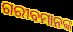
ଗରୀବମାନଙ୍କ